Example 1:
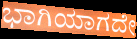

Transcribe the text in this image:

ಭಾಗಿಯಾಗದೇ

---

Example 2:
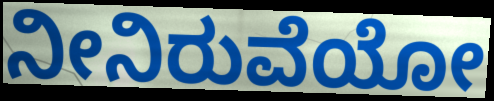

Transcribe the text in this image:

ನೀನಿರುವೆಯೋ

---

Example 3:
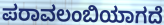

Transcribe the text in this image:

ಪರಾವಲಂಬಿಯಾಗದೆ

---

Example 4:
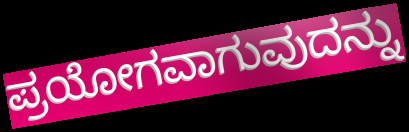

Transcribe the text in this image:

ಪ್ರಯೋಗವಾಗುವುದನ್ನು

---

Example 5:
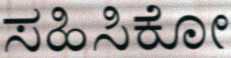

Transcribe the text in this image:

ಸಹಿಸಿಕೋ